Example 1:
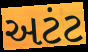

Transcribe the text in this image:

અટંટ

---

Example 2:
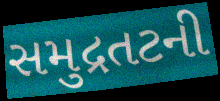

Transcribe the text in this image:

સમુદ્રતટની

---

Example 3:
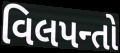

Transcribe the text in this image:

વિલપન્તો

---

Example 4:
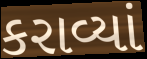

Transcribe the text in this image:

કરાવ્યાં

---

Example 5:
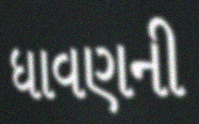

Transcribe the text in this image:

ધાવણની